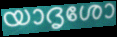
യാദൃശോ